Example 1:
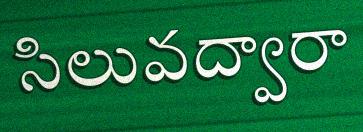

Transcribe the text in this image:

సిలువద్వారా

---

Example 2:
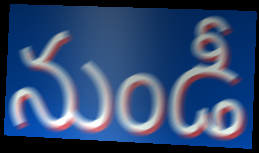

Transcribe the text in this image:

నుండీ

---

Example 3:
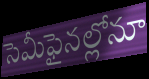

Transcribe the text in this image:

సెమీఫైనల్లోనూ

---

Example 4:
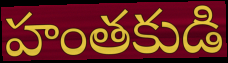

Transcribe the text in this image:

హంతకుడి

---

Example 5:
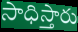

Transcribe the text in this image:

సాధిస్తారు